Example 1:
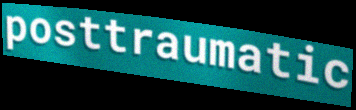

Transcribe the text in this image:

posttraumatic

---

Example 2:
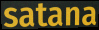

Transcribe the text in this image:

satana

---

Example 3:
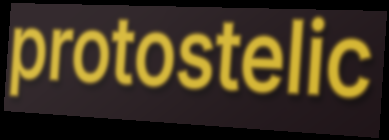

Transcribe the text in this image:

protostelic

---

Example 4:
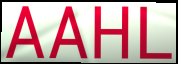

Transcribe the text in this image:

AAHL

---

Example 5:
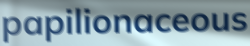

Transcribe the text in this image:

papilionaceous